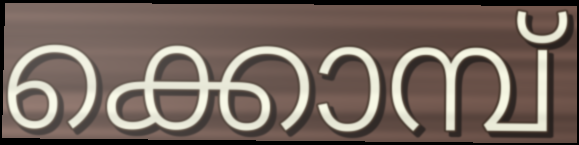
ക്കൊമ്പ്